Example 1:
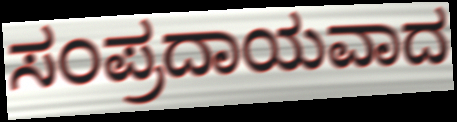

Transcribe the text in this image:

ಸಂಪ್ರದಾಯವಾದ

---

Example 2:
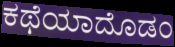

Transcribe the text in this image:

ಕಥೆಯಾದೊಡಂ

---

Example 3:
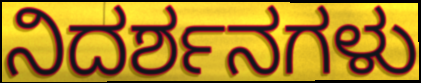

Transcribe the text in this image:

ನಿದರ್ಶನಗಳು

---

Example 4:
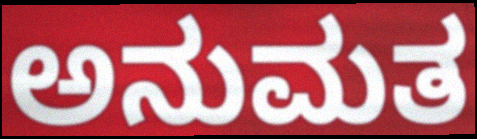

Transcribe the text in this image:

ಅನುಮತ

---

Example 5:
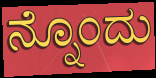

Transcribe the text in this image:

ನ್ನೊಂದು